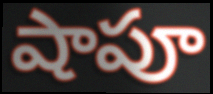
షాపూ